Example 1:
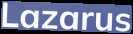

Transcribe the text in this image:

Lazarus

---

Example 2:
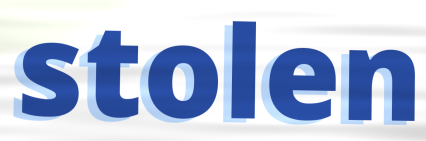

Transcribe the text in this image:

stolen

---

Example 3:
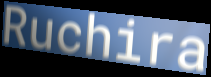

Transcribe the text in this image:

Ruchira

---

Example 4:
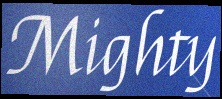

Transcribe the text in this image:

Mighty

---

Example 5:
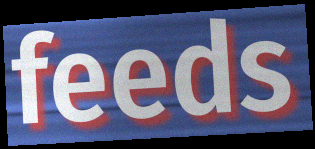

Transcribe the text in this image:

feeds